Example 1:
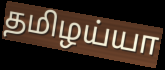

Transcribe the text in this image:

தமிழய்யா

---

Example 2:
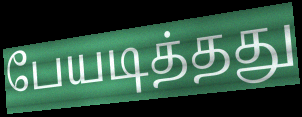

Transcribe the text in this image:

பேயடித்தது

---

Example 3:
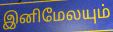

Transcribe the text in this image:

இனிமேலயும்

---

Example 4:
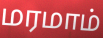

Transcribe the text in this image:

மரமாம்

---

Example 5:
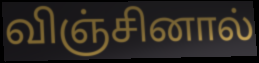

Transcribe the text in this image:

விஞ்சினால்